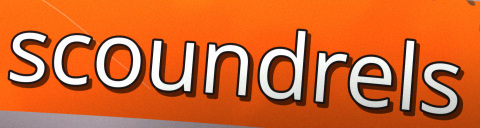
scoundrels